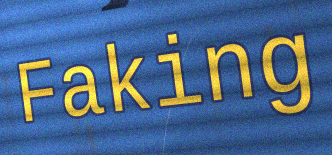
Faking